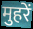
मुहरें